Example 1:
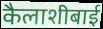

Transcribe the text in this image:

कैलाशीबाई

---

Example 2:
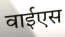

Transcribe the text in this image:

वाईएस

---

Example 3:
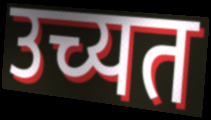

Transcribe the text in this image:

उच्यत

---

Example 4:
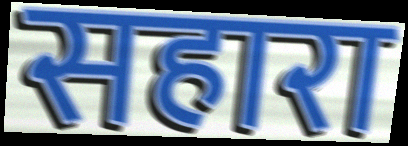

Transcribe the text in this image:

सहारा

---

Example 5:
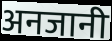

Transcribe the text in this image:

अनजानी